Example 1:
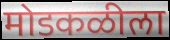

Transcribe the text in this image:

मोडकळीला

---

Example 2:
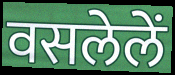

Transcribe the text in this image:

वसलेलें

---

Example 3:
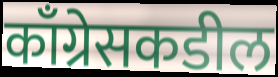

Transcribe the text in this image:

काँग्रेसकडील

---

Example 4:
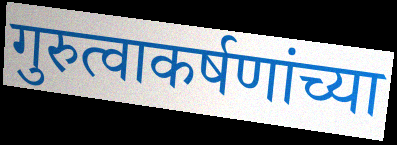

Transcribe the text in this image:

गुरुत्वाकर्षणांच्या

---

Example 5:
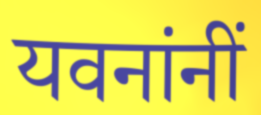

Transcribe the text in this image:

यवनांनीं